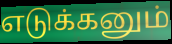
எடுக்கனும்